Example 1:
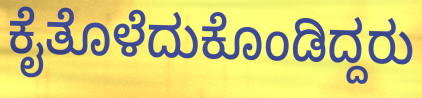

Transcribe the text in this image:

ಕೈತೊಳೆದುಕೊಂಡಿದ್ದರು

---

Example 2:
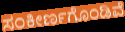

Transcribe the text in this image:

ಸಂಕೀರ್ಣಗೊಂಡಿವೆ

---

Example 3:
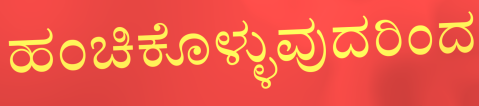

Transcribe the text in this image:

ಹಂಚಿಕೊಳ್ಳುವುದರಿಂದ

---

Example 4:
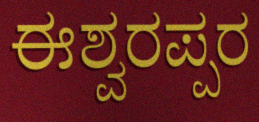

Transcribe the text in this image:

ಈಶ್ವರಪ್ಪರ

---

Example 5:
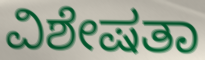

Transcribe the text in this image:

ವಿಶೇಷತಾ